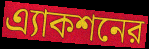
এ্যাকশনের